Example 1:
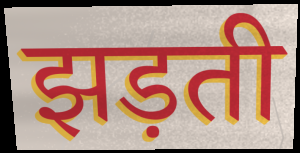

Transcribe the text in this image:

झड़ती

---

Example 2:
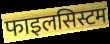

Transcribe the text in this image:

फाइलसिस्टम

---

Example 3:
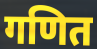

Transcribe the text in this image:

गणित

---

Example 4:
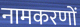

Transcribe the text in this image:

नामकरणों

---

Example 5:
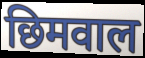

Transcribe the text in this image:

छिमवाल